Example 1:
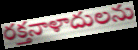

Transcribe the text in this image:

రక్తనాళాదులను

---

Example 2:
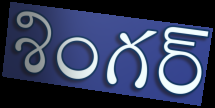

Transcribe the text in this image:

శింగర్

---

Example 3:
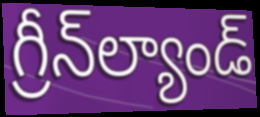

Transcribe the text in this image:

గ్రీన్‌ల్యాండ్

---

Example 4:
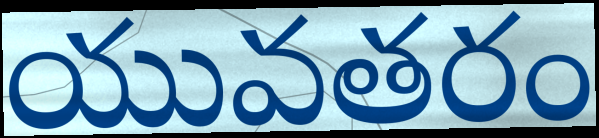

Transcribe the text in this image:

యువతరం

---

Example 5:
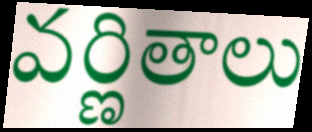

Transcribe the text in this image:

వర్ణితాలు